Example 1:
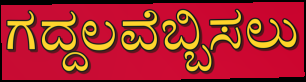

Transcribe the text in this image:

ಗದ್ದಲವೆಬ್ಬಿಸಲು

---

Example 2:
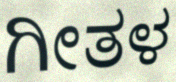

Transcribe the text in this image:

ಗೀತಳ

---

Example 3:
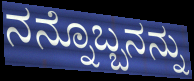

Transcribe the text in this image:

ನನ್ನೊಬ್ಬನನ್ನು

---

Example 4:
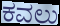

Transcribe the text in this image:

ಕವಲು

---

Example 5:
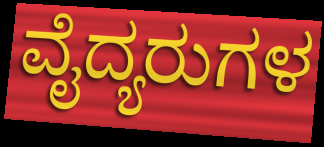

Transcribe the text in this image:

ವೈದ್ಯರುಗಳ